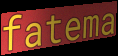
fatema